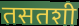
तसतशी